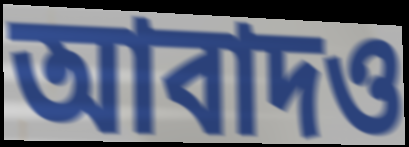
আবাদও